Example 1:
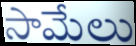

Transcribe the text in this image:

సామేలు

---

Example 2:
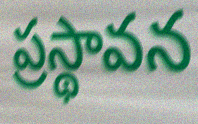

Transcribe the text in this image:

ప్రస్థావన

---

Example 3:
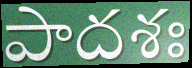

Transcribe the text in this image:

పాదశః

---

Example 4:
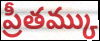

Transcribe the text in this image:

ప్రీతమ్కు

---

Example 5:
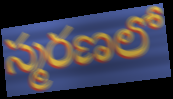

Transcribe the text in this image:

స్మరణలో